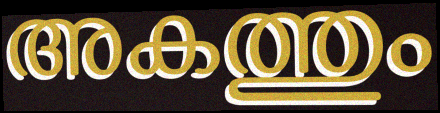
അകത്തും